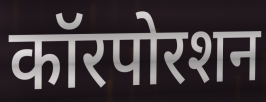
कॉरपोरशन